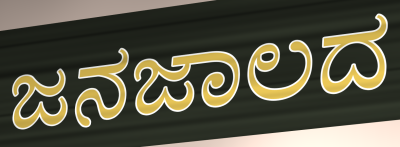
ಜನಜಾಲದ